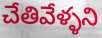
చేతివేళ్ళని